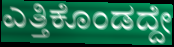
ಎತ್ತಿಕೊಂಡದ್ದೇ